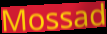
Mossad